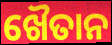
ଖୈତାନ